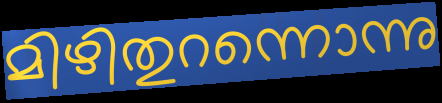
മിഴിതുറന്നൊന്നു